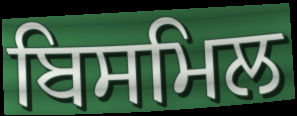
ਬਿਸਮਿਲ